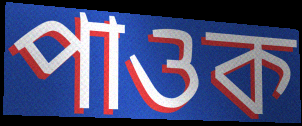
পাওক